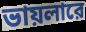
ভায়লারে